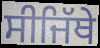
ਸੀਜਿੱਥੇ